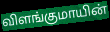
விளங்குமாயின்